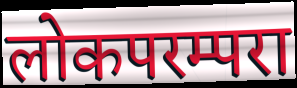
लोकपरम्परा